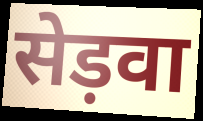
सेड़वा